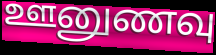
ஊனுணவு